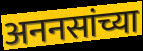
अननसांच्या